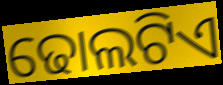
ଢୋଲଟିଏ